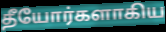
தீயோர்களாகிய